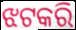
ଝଟକରି